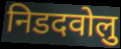
निडदवोलु